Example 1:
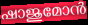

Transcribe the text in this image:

ഷാജുമോൻ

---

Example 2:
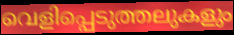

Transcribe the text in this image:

വെളിപ്പെടുത്തലുകളും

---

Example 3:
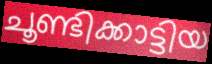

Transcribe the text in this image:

ചൂണ്ടിക്കാട്ടിയ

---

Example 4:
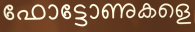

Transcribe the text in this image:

ഫോട്ടോണുകളെ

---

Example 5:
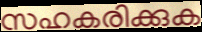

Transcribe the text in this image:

സഹകരിക്കുക